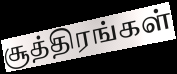
சூத்திரங்கள்